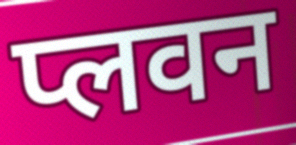
प्लवन